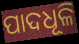
ପାଦଧୂଳି